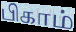
பிகாம்